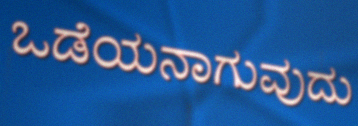
ಒಡೆಯನಾಗುವುದು